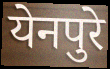
येनपुरे